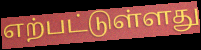
எற்பட்டுள்ளது